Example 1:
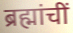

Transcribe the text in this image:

ब्रह्मांचीं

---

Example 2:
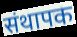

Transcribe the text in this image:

संथापक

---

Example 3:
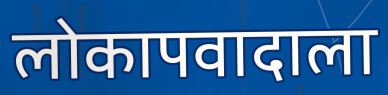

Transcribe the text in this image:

लोकापवादाला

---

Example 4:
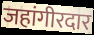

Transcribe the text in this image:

जहांगीरदार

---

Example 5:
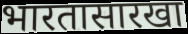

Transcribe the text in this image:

भारतासारखा